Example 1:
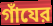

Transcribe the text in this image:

গাঁযের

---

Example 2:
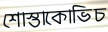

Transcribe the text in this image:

শোস্তাকোভিচ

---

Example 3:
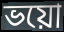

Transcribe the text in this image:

ভয়ো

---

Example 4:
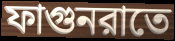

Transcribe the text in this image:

ফাগুনরাতে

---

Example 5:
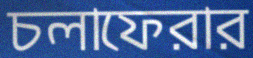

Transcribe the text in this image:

চলাফেরার